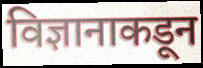
विज्ञानाकडून